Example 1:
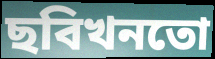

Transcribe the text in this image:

ছবিখনতো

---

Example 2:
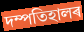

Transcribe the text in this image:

দম্পতিহালৰ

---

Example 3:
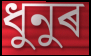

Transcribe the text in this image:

ধুনুৰ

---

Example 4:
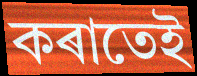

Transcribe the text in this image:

কৰাতেই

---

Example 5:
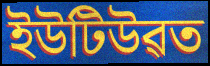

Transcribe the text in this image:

ইউটিউৱত